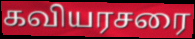
கவியரசரை